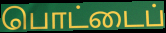
பொட்டைப்